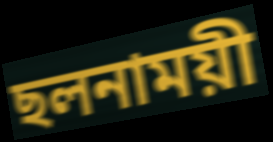
ছলনাময়ী